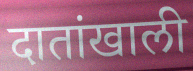
दातांखाली